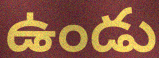
ఉండు